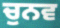
ਚੁਨਵ